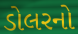
ડોલરનો